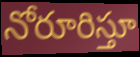
నోరూరిస్తూ